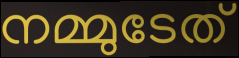
നമ്മുടേത്